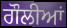
ਗੌਲੀਆਂ